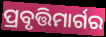
ପ୍ରବୃତ୍ତିମାର୍ଗର